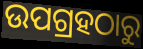
ଉପଗ୍ରହଠାରୁ